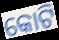
କୋଟି